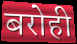
बरोही